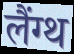
लैंग्थ